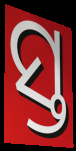
ସ୍ତ